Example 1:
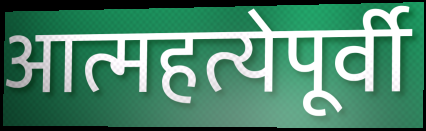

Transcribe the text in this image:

आत्महत्येपूर्वी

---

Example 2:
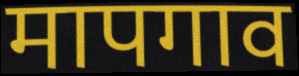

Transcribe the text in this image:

मापगाव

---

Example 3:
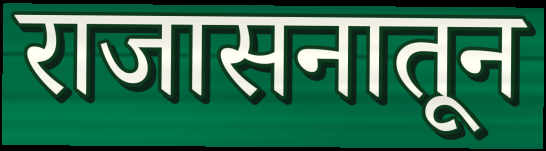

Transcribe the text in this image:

राजासनातून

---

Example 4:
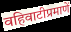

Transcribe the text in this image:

वहिवाटीप्रमाणें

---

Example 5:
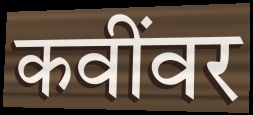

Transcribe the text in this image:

कवींवर